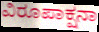
ವಿರೂಪಾಕ್ಷನಾ